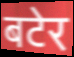
बटेर